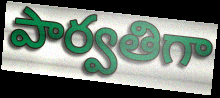
పార్వతిగా